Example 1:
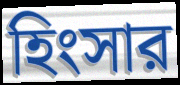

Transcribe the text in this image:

হিংসার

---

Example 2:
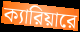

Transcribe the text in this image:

ক্যারিয়ারে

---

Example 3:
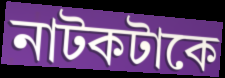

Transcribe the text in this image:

নাটকটাকে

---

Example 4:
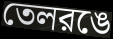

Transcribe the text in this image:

তেলরঙে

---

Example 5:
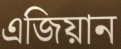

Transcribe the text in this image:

এজিয়ান